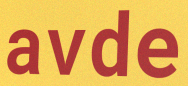
avde